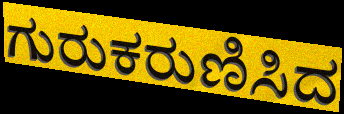
ಗುರುಕರುಣಿಸಿದ